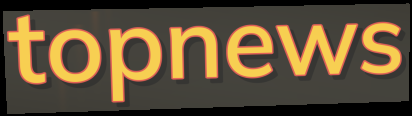
topnews